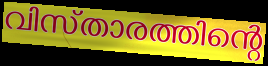
വിസ്‌താരത്തിന്റെ